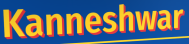
Kanneshwar